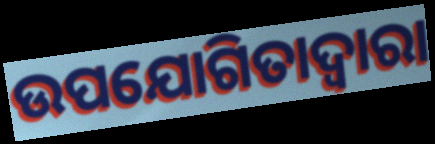
ଉପଯୋଗିତାଦ୍ୱାରା